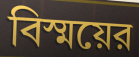
বিস্ময়ের